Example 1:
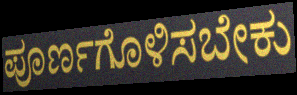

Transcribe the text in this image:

ಪೂರ್ಣಗೊಳಿಸಬೇಕು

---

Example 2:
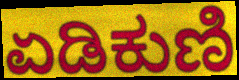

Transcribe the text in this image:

ಏಡಿಕುಣಿ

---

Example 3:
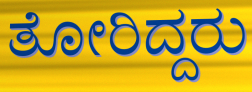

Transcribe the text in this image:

ತೋರಿದ್ದರು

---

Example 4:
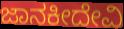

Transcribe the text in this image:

ಜಾನಕೀದೇವಿ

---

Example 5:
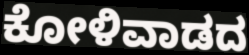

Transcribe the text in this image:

ಕೋಳಿವಾಡದ